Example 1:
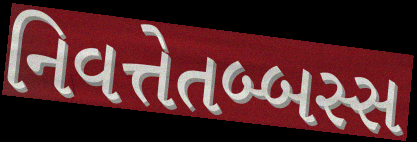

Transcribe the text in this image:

નિવત્તેતબ્બસ્સ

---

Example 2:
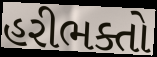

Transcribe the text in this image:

હરીભક્તો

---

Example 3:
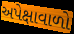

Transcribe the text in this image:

અપેક્ષાવાળો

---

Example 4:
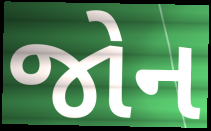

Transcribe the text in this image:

જોન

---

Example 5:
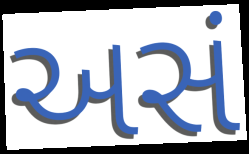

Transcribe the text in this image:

અસં